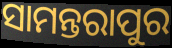
ସାମନ୍ତରାପୁର